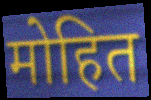
मोहित